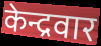
केन्‍द्रवार